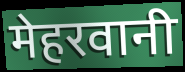
मेहरवानी